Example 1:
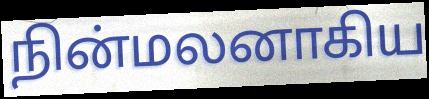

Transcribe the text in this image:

நின்மலனாகிய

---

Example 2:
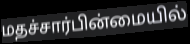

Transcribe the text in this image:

மதச்சார்பின்மையில்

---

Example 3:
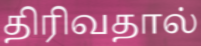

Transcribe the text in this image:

திரிவதால்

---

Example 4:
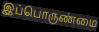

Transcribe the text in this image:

இப்பொருண்மை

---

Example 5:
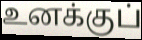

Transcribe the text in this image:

உனக்குப்